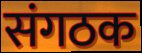
संगठक